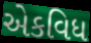
એકવિધ